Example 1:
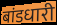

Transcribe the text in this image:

बांडधारी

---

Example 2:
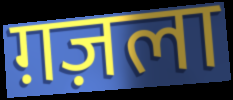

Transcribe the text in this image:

ग़ज़ला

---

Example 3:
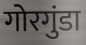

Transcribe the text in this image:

गोरगुंडा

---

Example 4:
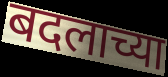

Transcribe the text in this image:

बदलाच्या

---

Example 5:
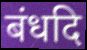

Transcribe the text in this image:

बंधदि